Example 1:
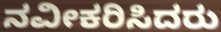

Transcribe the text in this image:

ನವೀಕರಿಸಿದರು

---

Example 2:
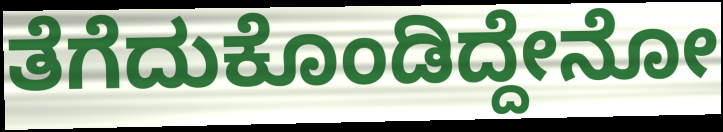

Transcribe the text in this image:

ತೆಗೆದುಕೊಂಡಿದ್ದೇನೋ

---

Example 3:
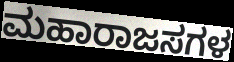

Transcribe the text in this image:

ಮಹಾರಾಜಸಗಳ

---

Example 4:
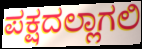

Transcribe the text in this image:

ಪಕ್ಷದಲ್ಲಾಗಲಿ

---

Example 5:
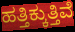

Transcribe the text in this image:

ಹತ್ತಿಕ್ಕುತ್ತಿವೆ